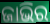
ଜାଭିର